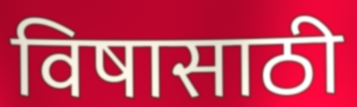
विषासाठी